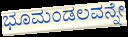
ಭೂಮಂಡಲವನ್ನೇ